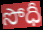
సోధీ